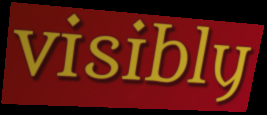
visibly